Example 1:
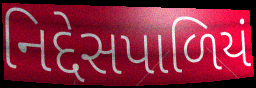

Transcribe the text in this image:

નિદ્દેસપાળિયં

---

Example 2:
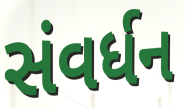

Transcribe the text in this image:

સંવર્ધન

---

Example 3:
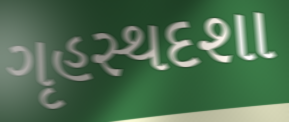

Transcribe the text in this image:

ગૃહસ્થદશા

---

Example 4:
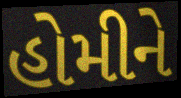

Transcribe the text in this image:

હોમીને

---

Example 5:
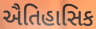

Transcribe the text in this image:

ઐતિહાસિક